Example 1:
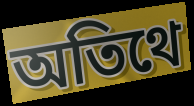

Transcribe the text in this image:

অতিথে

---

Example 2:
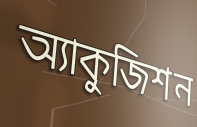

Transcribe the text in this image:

অ্যাকুজিশন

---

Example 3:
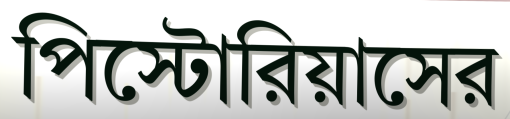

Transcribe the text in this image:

পিস্টোরিয়াসের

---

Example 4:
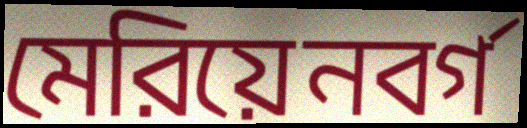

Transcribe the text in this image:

মেরিয়েনবর্গ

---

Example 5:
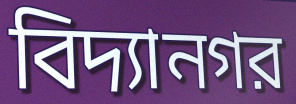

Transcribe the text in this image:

বিদ্যানগর